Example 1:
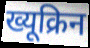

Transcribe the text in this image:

ख्यूक्रिन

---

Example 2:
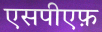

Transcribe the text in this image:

एसपीएफ़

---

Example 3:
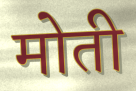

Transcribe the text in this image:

मोती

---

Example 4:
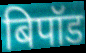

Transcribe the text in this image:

बिपॉड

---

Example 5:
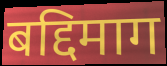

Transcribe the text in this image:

बद्दिमाग